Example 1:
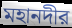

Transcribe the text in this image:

মহানদীর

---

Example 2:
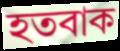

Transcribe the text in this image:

হতবাক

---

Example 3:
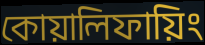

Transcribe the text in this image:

কোয়ালিফায়িং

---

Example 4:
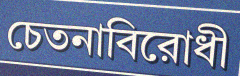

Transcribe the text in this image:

চেতনাবিরোধী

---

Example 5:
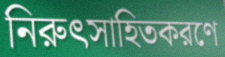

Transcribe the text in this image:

নিরুৎসাহিতকরণে